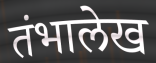
तंभालेख